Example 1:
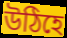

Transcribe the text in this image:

উঠিহে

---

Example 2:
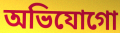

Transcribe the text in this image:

অভিযোগো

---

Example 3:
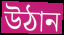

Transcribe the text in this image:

উঠান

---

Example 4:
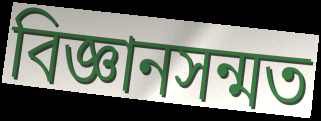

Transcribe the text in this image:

বিজ্ঞানসন্মত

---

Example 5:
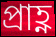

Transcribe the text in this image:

প্ৰাহ্ণ